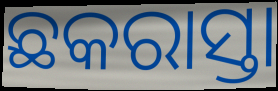
ଛକରାସ୍ତା